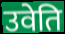
उवेति